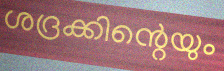
ശദ്രക്കിന്റെയും